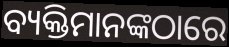
ବ୍ୟକ୍ତିମାନଙ୍କଠାରେ